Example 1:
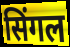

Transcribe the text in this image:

सिंगल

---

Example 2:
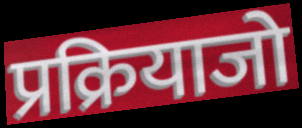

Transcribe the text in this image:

प्रक्रियाजो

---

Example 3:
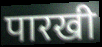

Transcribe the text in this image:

पारखी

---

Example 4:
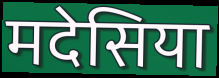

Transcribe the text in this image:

मदेसिया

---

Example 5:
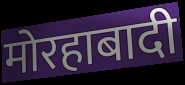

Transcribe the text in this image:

मोरहाबादी